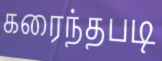
கரைந்தபடி